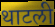
थाटली